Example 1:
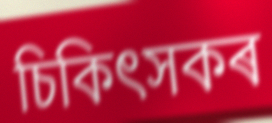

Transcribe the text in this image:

চিকিৎসকৰ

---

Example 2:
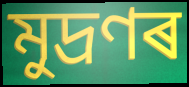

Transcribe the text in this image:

মুদ্ৰণৰ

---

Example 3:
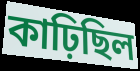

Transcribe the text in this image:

কাঢ়িছিল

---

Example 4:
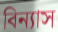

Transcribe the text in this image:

বিন্যাস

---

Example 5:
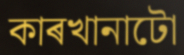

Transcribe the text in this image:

কাৰখানাটো